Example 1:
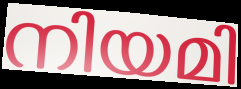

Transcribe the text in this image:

നിയമി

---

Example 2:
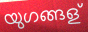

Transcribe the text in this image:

യുഗങ്ങള്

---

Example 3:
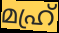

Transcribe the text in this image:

മഹ്ര്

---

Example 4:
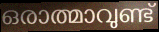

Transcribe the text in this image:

ഒരാത്മാവുണ്ട്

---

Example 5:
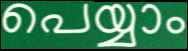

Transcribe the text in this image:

പെയ്യാം